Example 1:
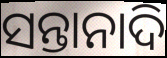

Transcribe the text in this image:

ସନ୍ତାନାଦି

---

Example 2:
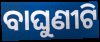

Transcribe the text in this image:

ବାଘୁଣୀଟି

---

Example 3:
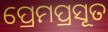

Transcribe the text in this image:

ପ୍ରେମପ୍ରସୂତ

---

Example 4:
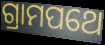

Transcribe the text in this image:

ଗ୍ରାମପଥେ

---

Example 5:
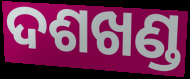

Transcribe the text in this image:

ଦଶଖଣ୍ଡ